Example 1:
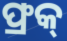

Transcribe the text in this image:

ଫ୍ରକ୍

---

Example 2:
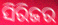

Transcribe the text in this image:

ସିରିଜର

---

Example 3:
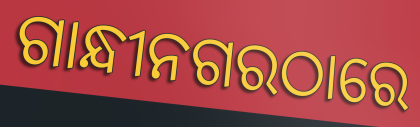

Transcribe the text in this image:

ଗାନ୍ଧୀନଗରଠାରେ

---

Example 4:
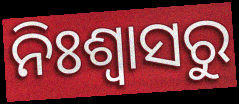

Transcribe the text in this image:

ନିଃଶ୍ଵାସରୁ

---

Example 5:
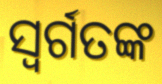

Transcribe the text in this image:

ସ୍ୱର୍ଗତଙ୍କ